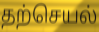
தற்செயல்